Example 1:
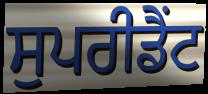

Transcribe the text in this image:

ਸੁਪਰੀਡੈਂਟ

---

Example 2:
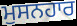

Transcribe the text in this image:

ਮੁਸਨਹਾਰ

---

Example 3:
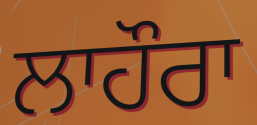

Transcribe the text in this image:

ਲਾਹੌਰਾ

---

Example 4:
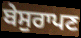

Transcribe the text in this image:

ਬੇਸੁਰਾਪਣ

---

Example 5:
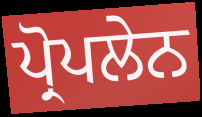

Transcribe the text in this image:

ਪ੍ਰੋਪਲੇਨ